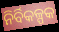
ନିର୍ବିକଳ୍ପକ